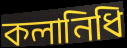
কলানিধি